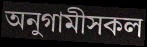
অনুগামীসকল